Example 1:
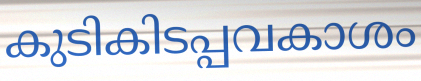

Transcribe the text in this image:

കുടികിടപ്പവകാശം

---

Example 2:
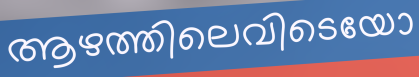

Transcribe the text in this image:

ആഴത്തിലെവിടെയോ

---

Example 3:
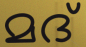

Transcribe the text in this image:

മദ്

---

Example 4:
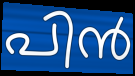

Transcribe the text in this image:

പിൻ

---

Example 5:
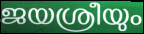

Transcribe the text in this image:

ജയശ്രീയും